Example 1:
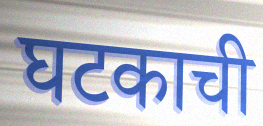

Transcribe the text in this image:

घटकाची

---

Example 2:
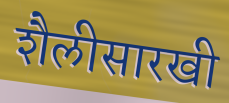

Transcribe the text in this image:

शैलीसारखी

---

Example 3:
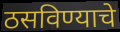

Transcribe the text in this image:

ठसविण्याचे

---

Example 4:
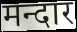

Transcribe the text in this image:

मन्दार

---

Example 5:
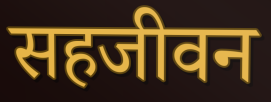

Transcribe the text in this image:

सहजीवन